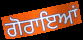
ਗੋਰਾਇਆਂ